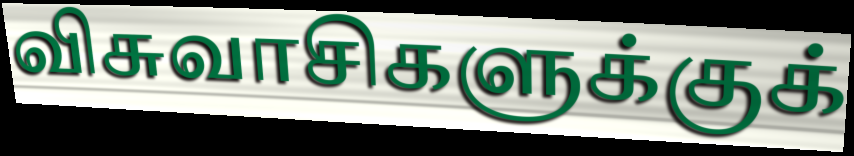
விசுவாசிகளுக்குக்